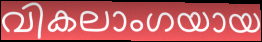
വികലാംഗയായ